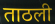
ताठली